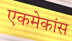
एकमेकांस